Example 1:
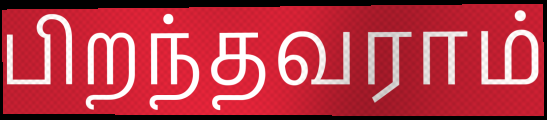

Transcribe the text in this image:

பிறந்தவராம்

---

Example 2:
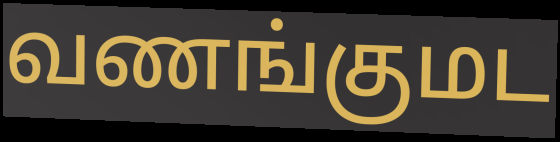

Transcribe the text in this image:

வணங்குமட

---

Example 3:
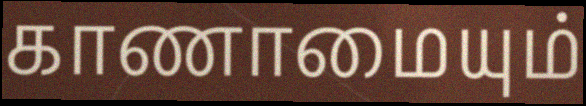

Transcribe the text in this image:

காணாமையும்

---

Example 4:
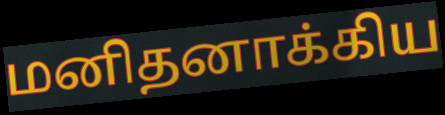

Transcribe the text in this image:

மனிதனாக்கிய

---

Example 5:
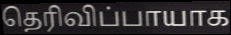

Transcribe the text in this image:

தெரிவிப்பாயாக